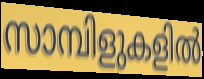
സാമ്പിളുകളിൽ